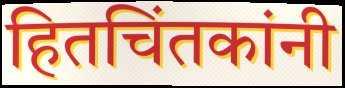
हितचिंतकांनी